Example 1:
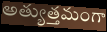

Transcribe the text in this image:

అత్యుత్తమంగా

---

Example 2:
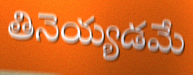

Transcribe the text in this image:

తినెయ్యడమే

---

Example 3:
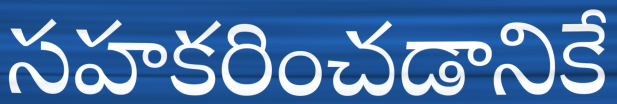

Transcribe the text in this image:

సహకరించడానికే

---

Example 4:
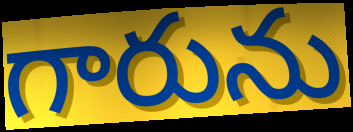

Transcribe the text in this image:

గారును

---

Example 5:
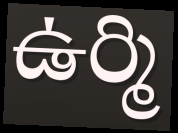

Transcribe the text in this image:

ఉర్మి